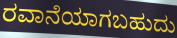
ರವಾನೆಯಾಗಬಹುದು